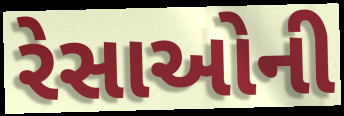
રેસાઓની